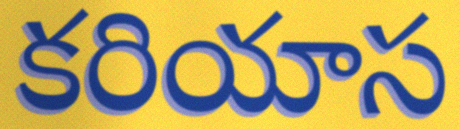
కరియాస